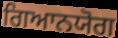
ਗਿਆਨਯੋਗ